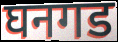
घनगड